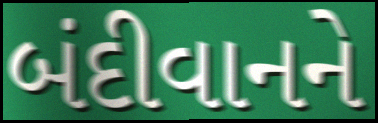
બંદીવાનને